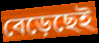
বেড়েছেই